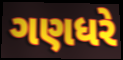
ગણધરે